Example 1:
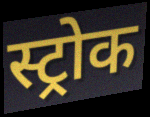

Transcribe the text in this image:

स्ट्रोक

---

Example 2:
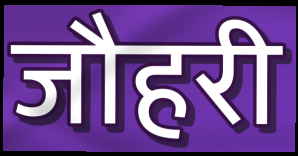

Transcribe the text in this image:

जौहरी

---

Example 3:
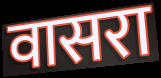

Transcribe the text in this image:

वासरा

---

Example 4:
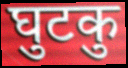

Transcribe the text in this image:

घुटकु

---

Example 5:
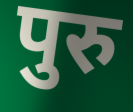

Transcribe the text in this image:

पुरु